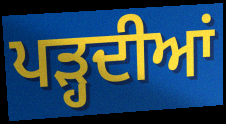
ਪੜ੍ਹਦੀਆਂ